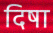
दिषा